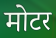
मोटर